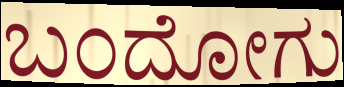
ಬಂದೋಗು